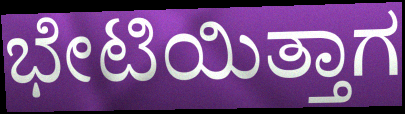
ಭೇಟಿಯಿತ್ತಾಗ